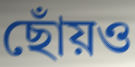
ছোঁয়ও